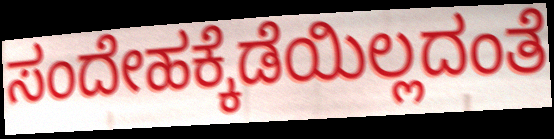
ಸಂದೇಹಕ್ಕೆಡೆಯಿಲ್ಲದಂತೆ